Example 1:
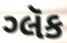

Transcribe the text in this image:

ગ્લૅક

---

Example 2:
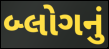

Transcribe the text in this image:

બ્લોગનું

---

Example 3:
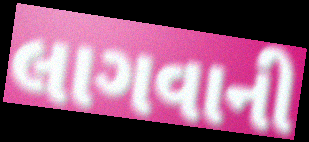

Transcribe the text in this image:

લાગવાની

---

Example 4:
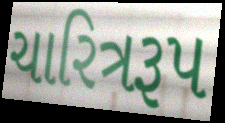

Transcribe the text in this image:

ચારિત્રરૂપ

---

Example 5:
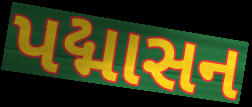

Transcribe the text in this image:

પદ્માસન